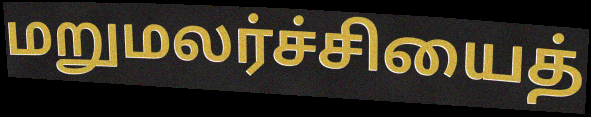
மறுமலர்ச்சியைத்